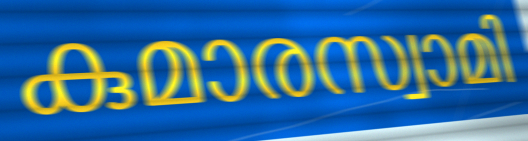
കുമാരസ്വാമി